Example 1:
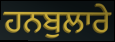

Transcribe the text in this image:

ਹਨਬੁਲਾਰੇ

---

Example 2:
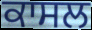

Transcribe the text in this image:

ਕਾਸਲ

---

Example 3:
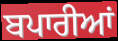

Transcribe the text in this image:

ਬਪਾਰੀਆਂ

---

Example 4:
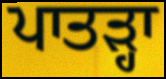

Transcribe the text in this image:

ਪਾਤੜ੍ਹਾ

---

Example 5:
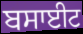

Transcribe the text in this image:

ਬਸਾਈਟ